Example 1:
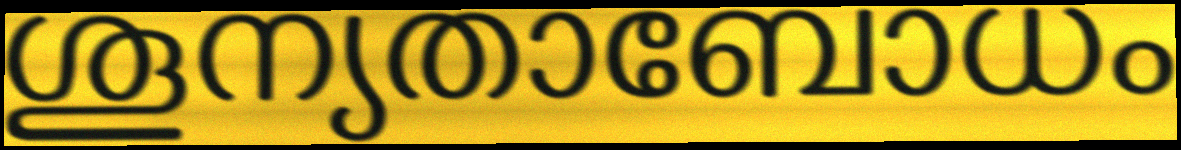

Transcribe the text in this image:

ശൂന്യതാബോധം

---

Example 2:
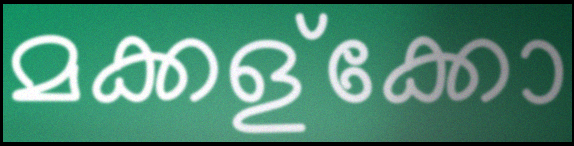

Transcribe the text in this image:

മക്കള്ക്കോ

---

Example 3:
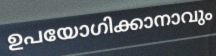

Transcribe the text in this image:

ഉപയോഗിക്കാനാവും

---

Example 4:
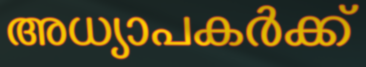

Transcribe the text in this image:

അധ്യാപകർക്ക്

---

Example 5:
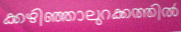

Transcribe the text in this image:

ക്കഴിഞ്ഞാലുറക്കത്തിൽ